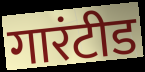
गारंटीड